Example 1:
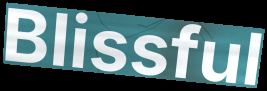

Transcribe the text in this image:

Blissful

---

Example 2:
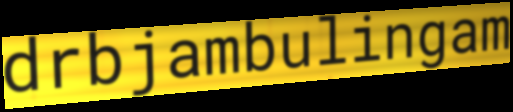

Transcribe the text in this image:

drbjambulingam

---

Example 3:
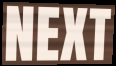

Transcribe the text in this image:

NEXT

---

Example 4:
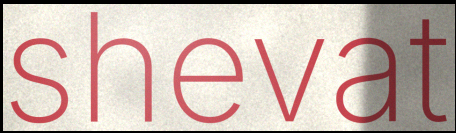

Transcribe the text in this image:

shevat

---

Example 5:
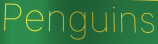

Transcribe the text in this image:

Penguins